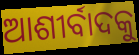
ଆଶୀର୍ବାଦକୁ